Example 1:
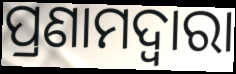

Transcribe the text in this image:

ପ୍ରଣାମଦ୍ୱାରା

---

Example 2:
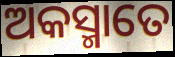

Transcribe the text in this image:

ଅକସ୍ମାତେ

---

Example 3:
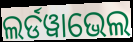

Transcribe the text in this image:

ଲର୍ଡୱାଭେଲ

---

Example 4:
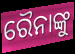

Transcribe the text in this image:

ରୈନାଙ୍କୁ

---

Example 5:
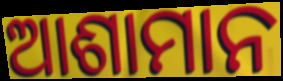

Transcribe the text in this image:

ଆଶାମାନ